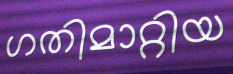
ഗതിമാറ്റിയ